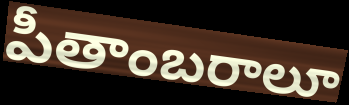
పీతాంబరాలూ